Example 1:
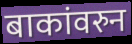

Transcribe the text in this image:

बाकांवरुन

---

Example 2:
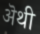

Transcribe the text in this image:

ऄथी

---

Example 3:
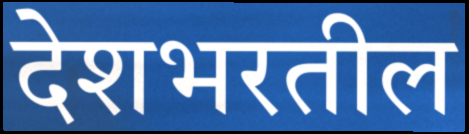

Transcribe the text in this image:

देशभरतील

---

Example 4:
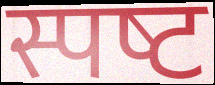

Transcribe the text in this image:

स्‍पष्‍ट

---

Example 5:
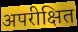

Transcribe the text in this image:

अपरीक्षित